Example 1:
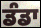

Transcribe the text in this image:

ਡੰਡਾ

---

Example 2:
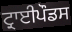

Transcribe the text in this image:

ਟ੍ਰਾਈਪੌਡਸ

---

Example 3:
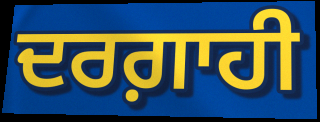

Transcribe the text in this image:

ਦਰਗ਼ਾਹੀ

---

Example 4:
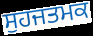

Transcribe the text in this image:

ਸੁਹਜਤਮਕ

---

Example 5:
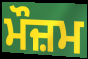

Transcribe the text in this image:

ਮੌਜ਼ਮ